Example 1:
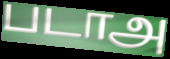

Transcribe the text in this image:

படாஅ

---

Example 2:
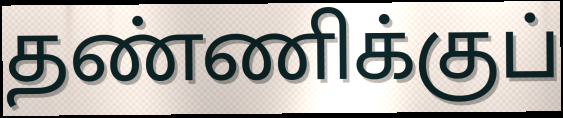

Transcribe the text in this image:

தண்ணிக்குப்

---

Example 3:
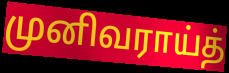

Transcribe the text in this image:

முனிவராய்த்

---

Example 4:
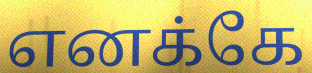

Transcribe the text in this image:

எனக்கே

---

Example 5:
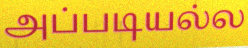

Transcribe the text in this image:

அப்படியல்ல